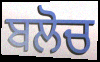
ਬਲੋਚ